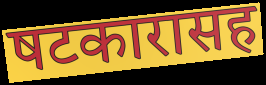
षटकारासह